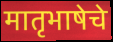
मातृभाषेचे